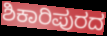
ಶಿಕಾರಿಪುರದ